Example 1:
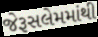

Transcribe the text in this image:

જેરૂસલેમમાંથી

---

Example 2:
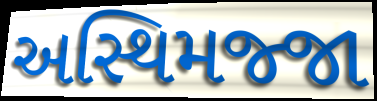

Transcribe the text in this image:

અસ્થિમજ્જા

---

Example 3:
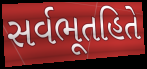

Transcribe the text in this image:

સર્વભૂતહિતે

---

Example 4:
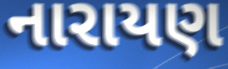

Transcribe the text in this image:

નારાયણ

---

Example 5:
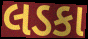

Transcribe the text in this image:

લડકા